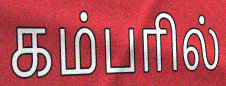
கம்பரில்